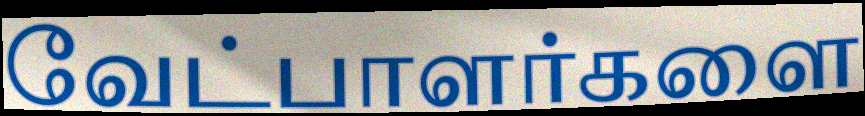
வேட்பாளர்களை